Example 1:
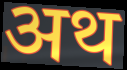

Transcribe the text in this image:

अथ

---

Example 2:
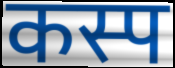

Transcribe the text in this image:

कस्प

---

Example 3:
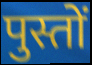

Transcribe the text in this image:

पुस्तों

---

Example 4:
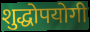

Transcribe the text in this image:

शुद्धोपयोगी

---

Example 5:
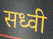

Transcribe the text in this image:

सध्वी